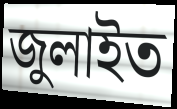
জুলাইত